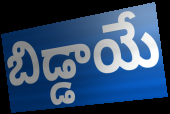
బిడ్డాయే